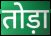
तोड़ा